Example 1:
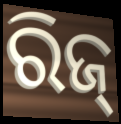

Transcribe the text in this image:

ରିଜ୍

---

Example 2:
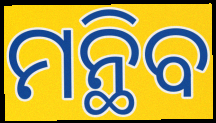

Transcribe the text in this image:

ମନ୍ଥିବ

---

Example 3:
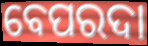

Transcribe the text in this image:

ବେପରଦା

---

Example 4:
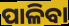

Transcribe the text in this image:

ପାଳିବା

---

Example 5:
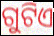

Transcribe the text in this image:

ଗୁଟିଏ